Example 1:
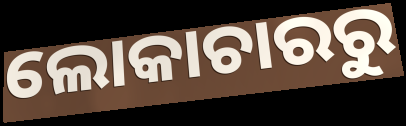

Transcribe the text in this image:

ଲୋକାଚାରରୁ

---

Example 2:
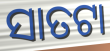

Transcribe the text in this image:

ସାତଟା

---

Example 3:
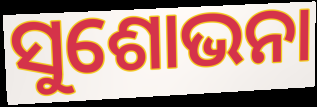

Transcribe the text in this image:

ସୁଶୋଭନା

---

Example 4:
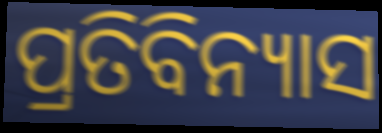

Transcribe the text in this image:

ପ୍ରତିବିନ୍ୟାସ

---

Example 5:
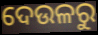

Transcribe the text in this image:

ଦେଉଳରୁ